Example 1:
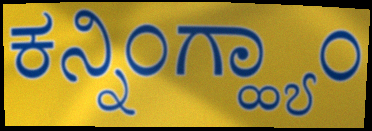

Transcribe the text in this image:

ಕನ್ನಿಂಗ್ಹ್ಯಾಂ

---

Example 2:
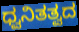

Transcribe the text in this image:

ಧ್ವನಿತತ್ವದ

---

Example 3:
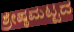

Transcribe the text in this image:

ಶ್ರೇಷ್ಠಮಟ್ಟದ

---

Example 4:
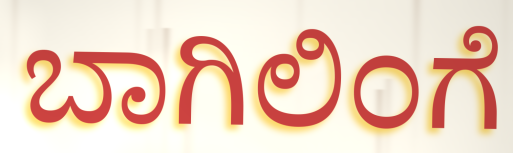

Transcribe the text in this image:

ಬಾಗಿಲಿಂಗೆ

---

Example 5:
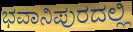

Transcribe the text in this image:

ಭವಾನಿಪುರದಲ್ಲಿ